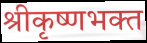
श्रीकृष्णभक्त